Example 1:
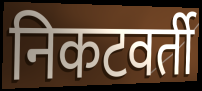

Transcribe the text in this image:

निकटवर्ती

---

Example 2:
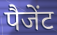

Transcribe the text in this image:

पैजेंट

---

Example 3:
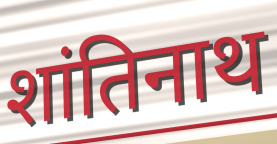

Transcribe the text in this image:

शांतिनाथ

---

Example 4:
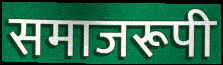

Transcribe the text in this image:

समाजरूपी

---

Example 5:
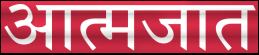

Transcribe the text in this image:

आत्मजात